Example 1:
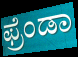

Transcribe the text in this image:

ಫ್ರೆಂಡಾ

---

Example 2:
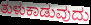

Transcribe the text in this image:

ತುಳುಕಾಡುವುದು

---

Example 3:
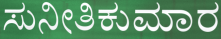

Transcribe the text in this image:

ಸುನೀತಿಕುಮಾರ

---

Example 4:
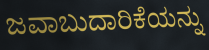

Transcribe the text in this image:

ಜವಾಬುದಾರಿಕೆಯನ್ನು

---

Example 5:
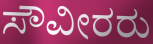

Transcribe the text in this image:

ಸೌವೀರರು